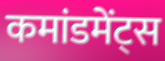
कमांडमेंट्स